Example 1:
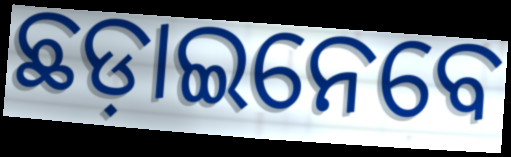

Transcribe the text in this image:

ଛଡ଼ାଇନେବେ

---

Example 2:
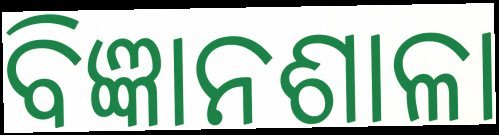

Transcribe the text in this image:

ବିଜ୍ଞାନଶାଳା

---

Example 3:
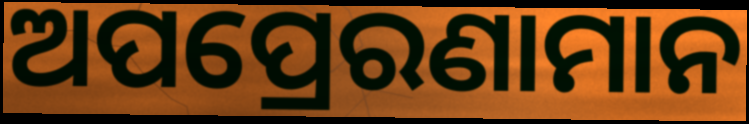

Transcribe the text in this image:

ଅପପ୍ରେରଣାମାନ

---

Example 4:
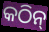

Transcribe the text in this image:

କଠିନ୍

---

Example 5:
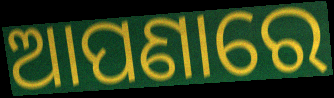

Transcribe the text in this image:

ଆପଣାରେ